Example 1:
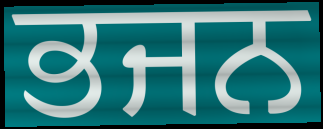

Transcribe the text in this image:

ਭਜਨ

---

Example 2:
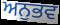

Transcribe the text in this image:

ਅਨੁਭਵ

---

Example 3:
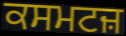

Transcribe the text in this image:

ਕਸਮਟਜ਼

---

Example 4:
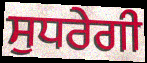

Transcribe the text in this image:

ਸੁਧਰੇਗੀ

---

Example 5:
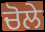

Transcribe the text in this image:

ਚੋਲੇ